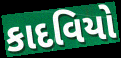
કાદવિયો